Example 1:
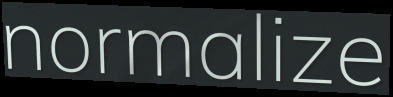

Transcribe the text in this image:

normalize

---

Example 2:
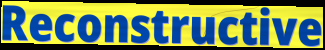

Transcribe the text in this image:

Reconstructive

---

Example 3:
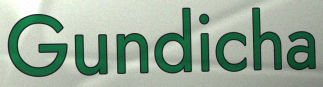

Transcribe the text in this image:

Gundicha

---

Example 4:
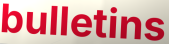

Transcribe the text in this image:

bulletins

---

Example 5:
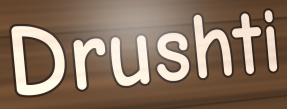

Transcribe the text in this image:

Drushti